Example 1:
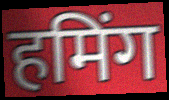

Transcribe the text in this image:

हमिंग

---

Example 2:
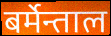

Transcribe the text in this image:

बर्मेन्ताल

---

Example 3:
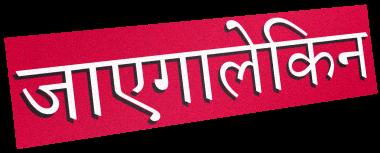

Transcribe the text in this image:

जाएगालेकिन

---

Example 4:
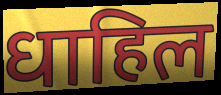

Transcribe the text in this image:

धाहिल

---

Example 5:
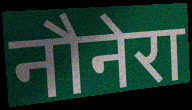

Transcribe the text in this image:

नौनेरा